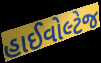
હાઈવોલ્ટેજ